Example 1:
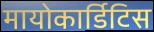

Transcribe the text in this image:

मायोकार्डिटिस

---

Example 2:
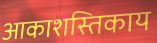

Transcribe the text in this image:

आकाशस्तिकाय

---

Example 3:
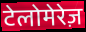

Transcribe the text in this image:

टेलोमेरेज़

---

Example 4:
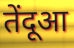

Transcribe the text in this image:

तेंदूआ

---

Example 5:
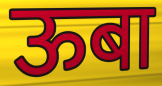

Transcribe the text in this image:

ऊबा